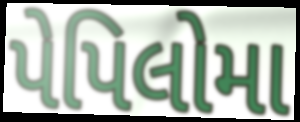
પેપિલોમા